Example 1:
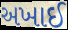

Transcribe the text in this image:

અખાઈ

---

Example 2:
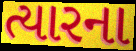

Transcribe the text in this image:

ત્યારના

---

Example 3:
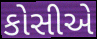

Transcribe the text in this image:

કોસીએ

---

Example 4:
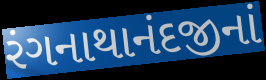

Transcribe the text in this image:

રંગનાથાનંદજીનાં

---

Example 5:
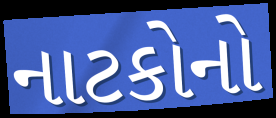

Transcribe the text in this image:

નાટકોનો